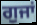
ਗੁਜਾਂ